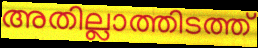
അതില്ലാത്തിടത്ത്